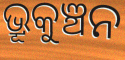
ଭ୍ରୂକୁଞ୍ଚନ